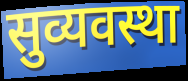
सुव्यवस्था